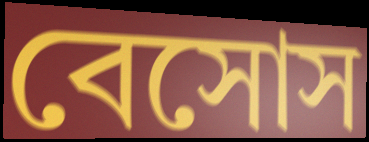
বেসোস